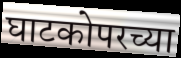
घाटकोपरच्या